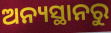
ଅନ୍ୟସ୍ଥାନରୁ